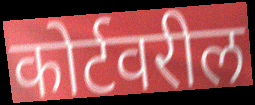
कोर्टवरील